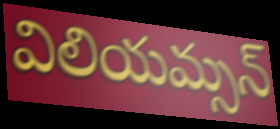
విలియమ్సన్